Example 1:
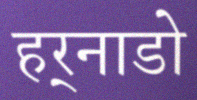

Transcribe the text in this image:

हर्नाडो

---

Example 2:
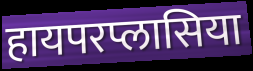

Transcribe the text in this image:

हायपरप्लासिया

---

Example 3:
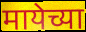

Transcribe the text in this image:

मायेच्या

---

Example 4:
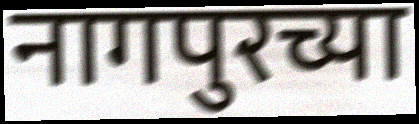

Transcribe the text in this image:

नागपुरच्या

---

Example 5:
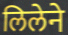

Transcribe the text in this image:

लिलेने